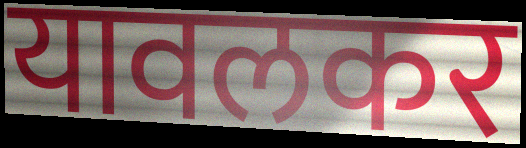
यावलकर